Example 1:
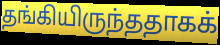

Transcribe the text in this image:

தங்கியிருந்ததாகக்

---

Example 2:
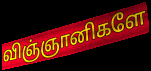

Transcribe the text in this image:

விஞ்ஞானிகளே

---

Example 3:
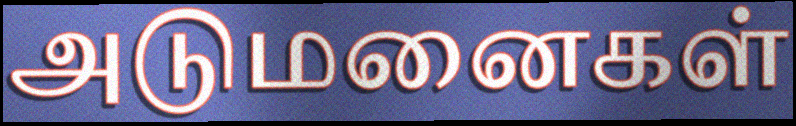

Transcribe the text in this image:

அடுமனைகள்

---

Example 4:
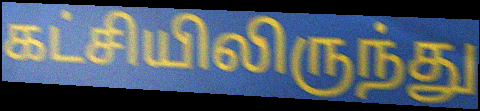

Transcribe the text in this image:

கட்சியிலிருந்து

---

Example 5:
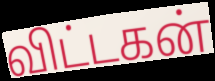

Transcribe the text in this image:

விட்டகன்